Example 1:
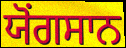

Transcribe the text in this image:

ਯੋਂਗਸਾਨ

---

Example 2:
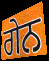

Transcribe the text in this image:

ਗੇਨ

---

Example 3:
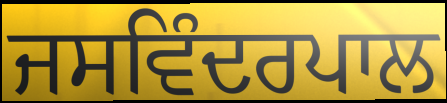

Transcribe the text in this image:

ਜਸਵਿੰਦਰਪਾਲ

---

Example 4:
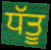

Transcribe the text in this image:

ਧੱਤੂ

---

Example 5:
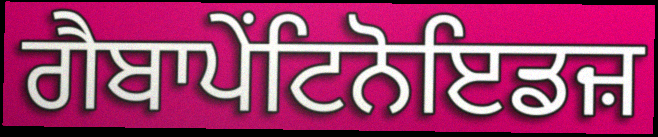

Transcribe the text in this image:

ਗੈਬਾਪੇਂਟਿਨੋਇਡਜ਼